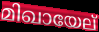
മിഖായേല്